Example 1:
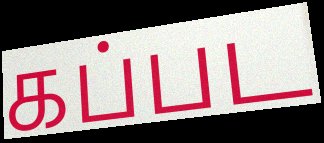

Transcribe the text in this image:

கப்பட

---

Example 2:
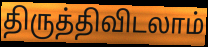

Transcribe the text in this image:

திருத்திவிடலாம்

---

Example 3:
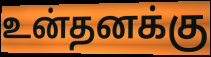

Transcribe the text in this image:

உன்தனக்கு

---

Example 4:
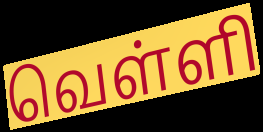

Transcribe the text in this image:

வெள்ளி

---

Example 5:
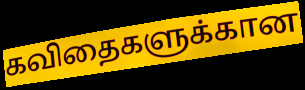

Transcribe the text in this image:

கவிதைகளுக்கான